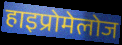
हाइप्रोमेलोज